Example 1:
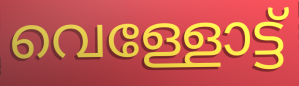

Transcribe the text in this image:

വെള്ളോട്ട്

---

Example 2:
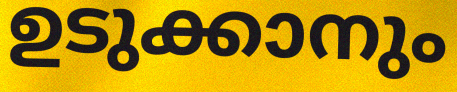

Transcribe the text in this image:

ഉടുക്കാനും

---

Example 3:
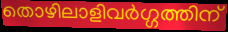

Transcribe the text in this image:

തൊഴിലാളിവർഗ്ഗത്തിന്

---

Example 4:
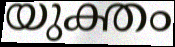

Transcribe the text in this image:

യുക്തം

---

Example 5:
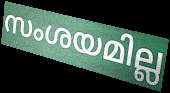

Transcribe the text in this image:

സംശയമില്ല